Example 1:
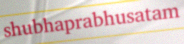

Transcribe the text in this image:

shubhaprabhusatam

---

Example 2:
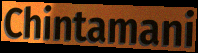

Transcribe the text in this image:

Chintamani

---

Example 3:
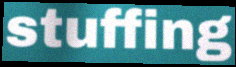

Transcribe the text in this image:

stuffing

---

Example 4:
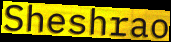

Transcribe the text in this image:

Sheshrao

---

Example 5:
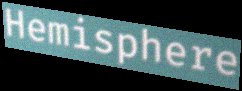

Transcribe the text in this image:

Hemisphere